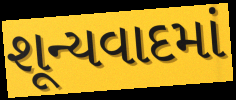
શૂન્યવાદમાં